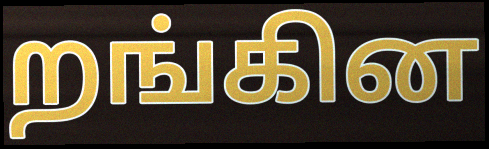
றங்கின